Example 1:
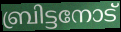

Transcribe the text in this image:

ബ്രിട്ടനോട്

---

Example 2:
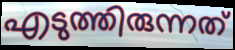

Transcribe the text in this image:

എടുത്തിരുന്നത്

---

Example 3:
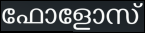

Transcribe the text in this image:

ഫോളോസ്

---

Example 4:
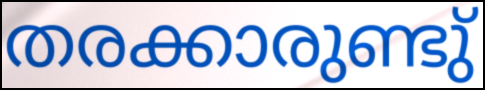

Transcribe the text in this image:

തരക്കാരുണ്ടു്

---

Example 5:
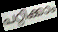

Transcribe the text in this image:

പറ്റിക്കാം